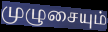
முழுசையும்